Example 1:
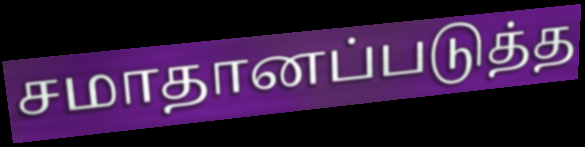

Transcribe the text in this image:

சமாதானப்படுத்த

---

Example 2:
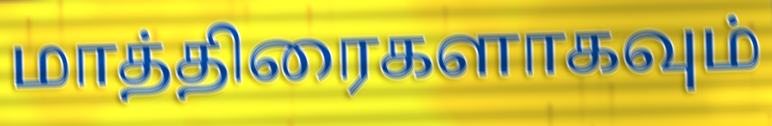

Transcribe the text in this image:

மாத்திரைகளாகவும்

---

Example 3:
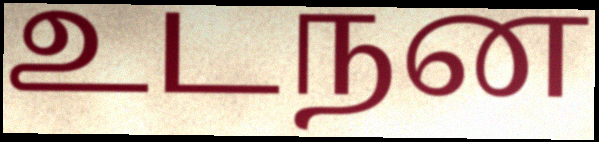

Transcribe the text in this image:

உடநன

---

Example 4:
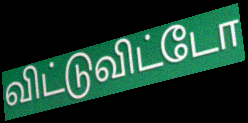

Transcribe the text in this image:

விட்டுவிட்டோ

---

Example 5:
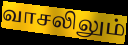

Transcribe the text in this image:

வாசலிலும்